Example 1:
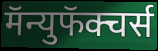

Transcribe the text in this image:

मॅन्युफॅक्चर्स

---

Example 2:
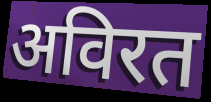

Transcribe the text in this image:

अविरत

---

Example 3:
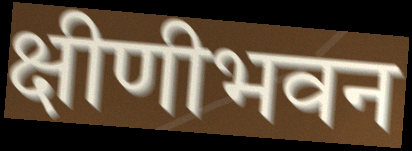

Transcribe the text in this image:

क्षीणीभवन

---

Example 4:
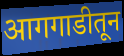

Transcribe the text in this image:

आगगाडीतून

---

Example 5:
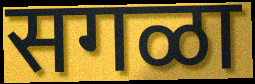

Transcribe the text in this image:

सगळा